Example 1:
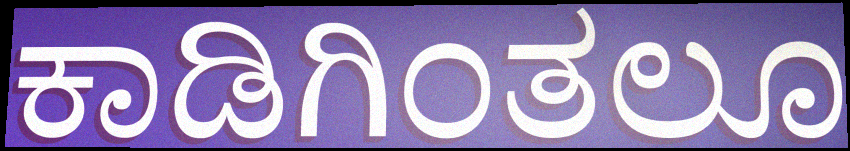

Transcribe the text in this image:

ಕಾಡಿಗಿಂತಲೂ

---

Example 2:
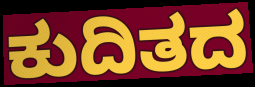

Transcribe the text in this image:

ಕುದಿತದ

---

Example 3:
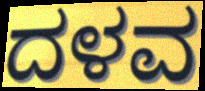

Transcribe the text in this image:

ದಳವ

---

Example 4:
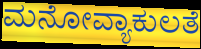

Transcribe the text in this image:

ಮನೋವ್ಯಾಕುಲತೆ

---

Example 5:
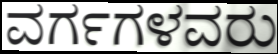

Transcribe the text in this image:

ವರ್ಗಗಳವರು